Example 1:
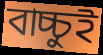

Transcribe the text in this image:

বাচ্চুই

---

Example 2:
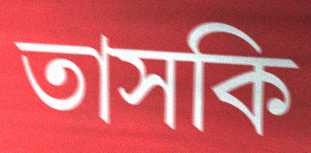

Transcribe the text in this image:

তাসকি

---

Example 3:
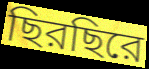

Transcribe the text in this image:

ছিরছিরে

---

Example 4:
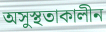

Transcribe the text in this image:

অসুস্থতাকালীন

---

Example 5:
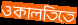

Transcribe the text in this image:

ওকালতিতে